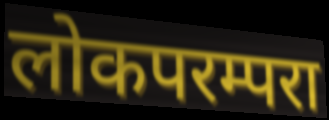
लोकपरम्परा